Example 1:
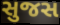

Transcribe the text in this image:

સુજસ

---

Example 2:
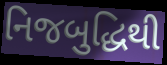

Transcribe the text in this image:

નિજબુદ્ધિથી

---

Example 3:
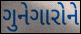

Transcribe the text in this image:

ગુનેગારોને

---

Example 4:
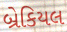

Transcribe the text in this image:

બ્રેકિયલ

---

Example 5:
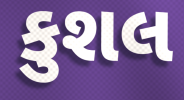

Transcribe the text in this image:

કુશલ